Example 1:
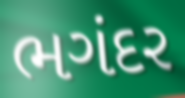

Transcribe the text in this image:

ભગંદર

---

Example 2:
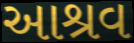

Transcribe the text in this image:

આશ્રવ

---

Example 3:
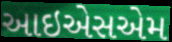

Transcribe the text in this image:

આઇએસએમ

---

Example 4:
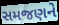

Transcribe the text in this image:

સમજણને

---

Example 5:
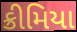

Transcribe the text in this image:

ક્રીમિયા